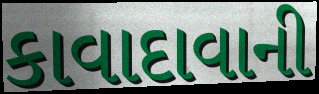
કાવાદાવાની